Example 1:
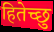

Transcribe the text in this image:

हितेच्छु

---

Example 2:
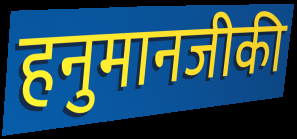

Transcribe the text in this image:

हनुमानजीकी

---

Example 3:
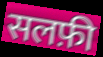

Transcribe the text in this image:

सलफ़ी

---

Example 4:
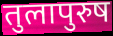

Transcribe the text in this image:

तुलापुरुष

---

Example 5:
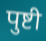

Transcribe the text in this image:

पुष्टी